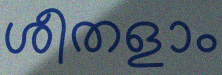
ശീതളാം